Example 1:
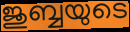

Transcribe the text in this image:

ജുബ്ബയുടെ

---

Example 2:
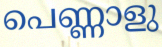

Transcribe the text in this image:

പെണ്ണാളു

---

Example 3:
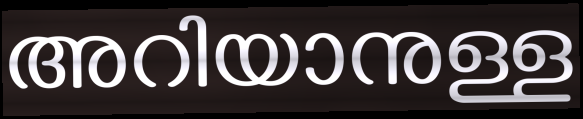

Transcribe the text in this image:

അറിയാനുള്ള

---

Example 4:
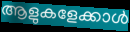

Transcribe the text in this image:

ആളുകളേക്കാൾ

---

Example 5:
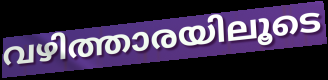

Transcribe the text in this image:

വഴിത്താരയിലൂടെ